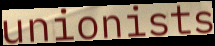
unionists